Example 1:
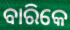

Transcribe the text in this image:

ବାରିକେ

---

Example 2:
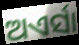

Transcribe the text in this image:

ଅଏର୍ସା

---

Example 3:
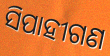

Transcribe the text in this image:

ସିପାହୀଗଣ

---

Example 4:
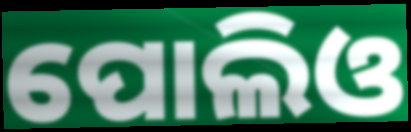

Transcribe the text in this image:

ପୋଲିଓ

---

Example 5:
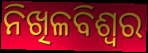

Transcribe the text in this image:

ନିଖିଳବିଶ୍ୱର